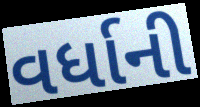
વર્ધાની